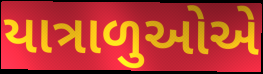
યાત્રાળુઓએ